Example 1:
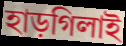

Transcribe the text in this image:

হাড়গিলাই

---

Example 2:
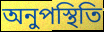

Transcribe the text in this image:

অনুপস্থিতি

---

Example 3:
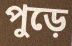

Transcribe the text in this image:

পুড়ে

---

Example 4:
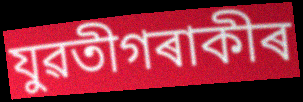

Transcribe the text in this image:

যুৱতীগৰাকীৰ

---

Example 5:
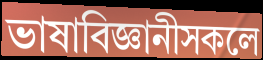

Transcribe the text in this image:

ভাষাবিজ্ঞানীসকলে